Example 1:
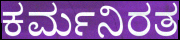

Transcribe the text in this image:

ಕರ್ಮನಿರತ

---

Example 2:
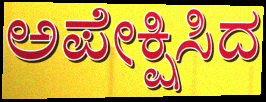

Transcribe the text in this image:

ಅಪೇಕ್ಷಿಸಿದ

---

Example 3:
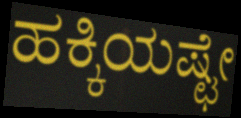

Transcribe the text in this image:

ಹಕ್ಕಿಯಷ್ಟೇ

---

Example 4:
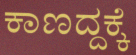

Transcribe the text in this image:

ಕಾಣದ್ದಕ್ಕೆ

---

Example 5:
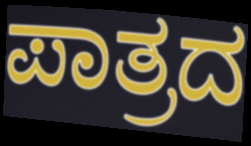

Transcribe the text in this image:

ಪಾತ್ರದ